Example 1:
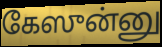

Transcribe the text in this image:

கேஸுன்னு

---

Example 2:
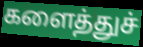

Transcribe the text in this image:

களைத்துச்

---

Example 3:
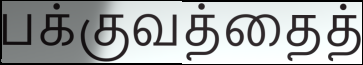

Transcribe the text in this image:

பக்குவத்தைத்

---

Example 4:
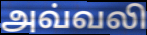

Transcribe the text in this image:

அவ்வலி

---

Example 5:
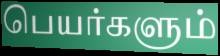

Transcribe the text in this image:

பெயர்களும்